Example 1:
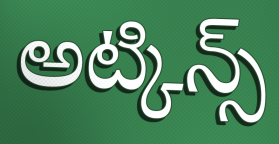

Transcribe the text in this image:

అట్కిన్స్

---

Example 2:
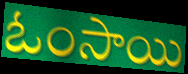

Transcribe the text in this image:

ఓంసాయి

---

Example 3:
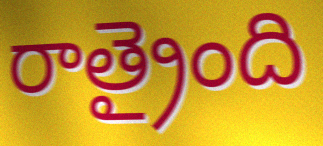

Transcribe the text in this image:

రాత్రైంది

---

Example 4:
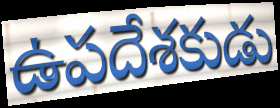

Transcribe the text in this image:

ఉపదేశకుడు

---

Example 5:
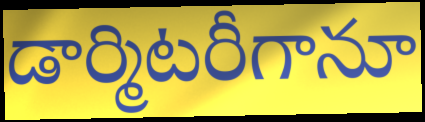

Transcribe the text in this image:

డార్మిటరీగానూ